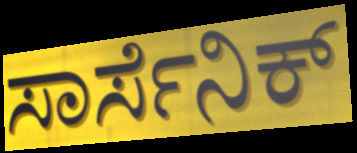
ಸಾರ್ಸೆನಿಕ್